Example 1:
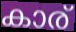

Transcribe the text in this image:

കാര്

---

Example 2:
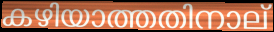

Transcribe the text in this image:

കഴിയാത്തതിനാല്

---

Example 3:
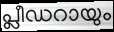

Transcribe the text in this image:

പ്ലീഡറായും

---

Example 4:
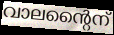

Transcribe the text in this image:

വാലന്റൈന്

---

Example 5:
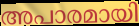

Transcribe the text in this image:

അപാരമായി